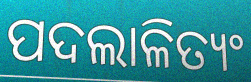
ପଦଲାଳିତ୍ୟଂ